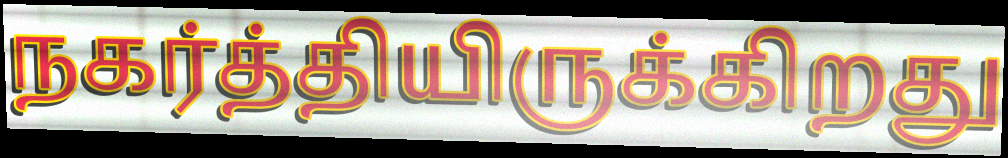
நகர்த்தியிருக்கிறது